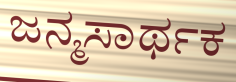
ಜನ್ಮಸಾರ್ಥಕ